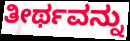
ತೀರ್ಥವನ್ನು